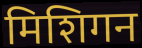
मिशिगन